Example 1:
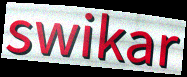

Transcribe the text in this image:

swikar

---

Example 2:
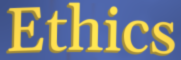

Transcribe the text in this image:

Ethics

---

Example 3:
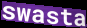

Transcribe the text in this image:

swasta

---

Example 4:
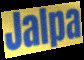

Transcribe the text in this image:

Jalpa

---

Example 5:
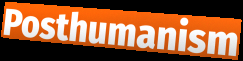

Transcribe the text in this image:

Posthumanism